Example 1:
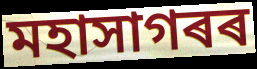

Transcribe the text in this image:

মহাসাগৰৰ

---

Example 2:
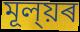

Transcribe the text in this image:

মূল্য়ৰ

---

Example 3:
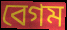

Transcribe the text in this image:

বেগম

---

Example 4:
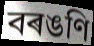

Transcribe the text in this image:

বৰঙণি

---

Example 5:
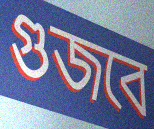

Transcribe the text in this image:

গুজবে